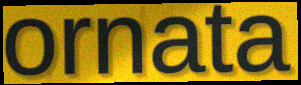
ornata